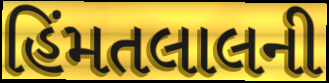
હિંમતલાલની